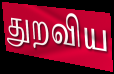
துறவிய